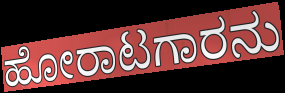
ಹೋರಾಟಗಾರನು